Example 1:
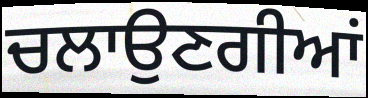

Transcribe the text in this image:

ਚਲਾਉਣਗੀਆਂ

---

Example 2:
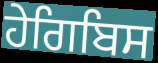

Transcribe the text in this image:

ਹੇਗਿਬਿਸ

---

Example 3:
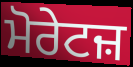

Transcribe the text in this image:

ਮੋਰੇਟਜ਼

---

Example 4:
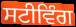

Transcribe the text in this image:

ਸਟੀਵਿੰਗ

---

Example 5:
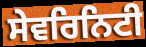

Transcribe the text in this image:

ਸੇਵਰਿਨਿਟੀ